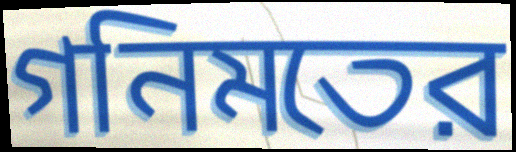
গনিমতের